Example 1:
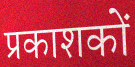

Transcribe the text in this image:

प्रकाशकों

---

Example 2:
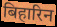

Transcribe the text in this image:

बिहारिन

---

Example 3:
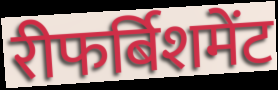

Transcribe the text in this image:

रीफर्बिशमेंट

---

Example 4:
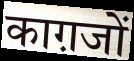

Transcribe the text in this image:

काग़जों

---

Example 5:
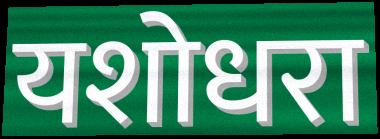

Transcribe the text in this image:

यशोधरा